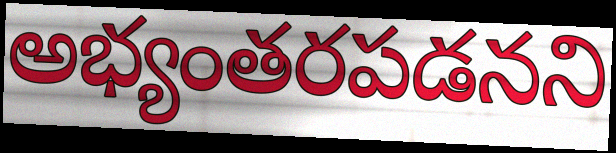
అభ్యంతరపడనని